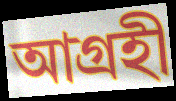
আগ্ৰহী